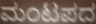
ಮಂಟಪದ